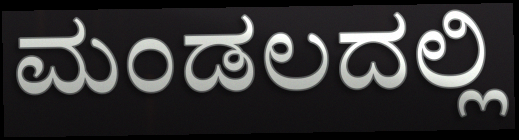
ಮಂಡಲದಲ್ಲಿ